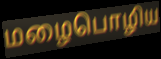
மழைபொழிய